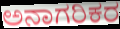
ಅನಾಗರಿಕರ